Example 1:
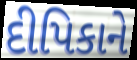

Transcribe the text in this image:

દીપિકાને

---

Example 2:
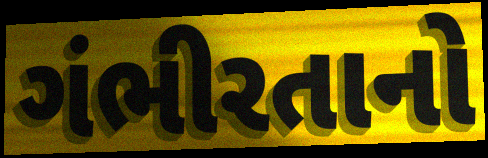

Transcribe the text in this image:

ગંભીરતાનો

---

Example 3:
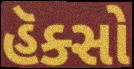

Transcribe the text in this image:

હૅક્સો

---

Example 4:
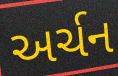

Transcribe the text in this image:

અર્ચન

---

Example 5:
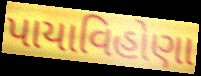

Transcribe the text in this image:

પાયાવિહોણા